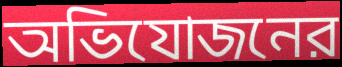
অভিযোজনের